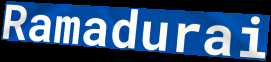
Ramadurai